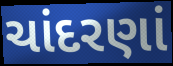
ચાંદરણાં